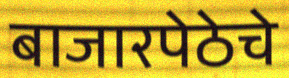
बाजारपेठेचे